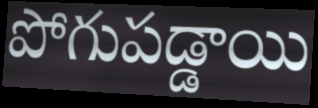
పోగుపడ్డాయి